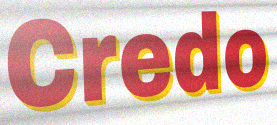
Credo